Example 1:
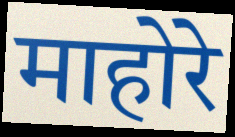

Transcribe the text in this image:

माहोरे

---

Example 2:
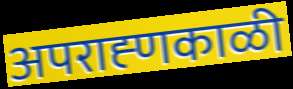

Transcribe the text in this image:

अपराह्णकाळी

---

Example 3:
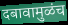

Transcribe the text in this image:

दबावामुळंच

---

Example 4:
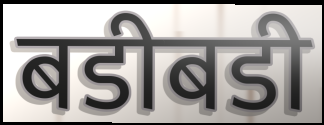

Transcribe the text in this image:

बडीबडी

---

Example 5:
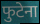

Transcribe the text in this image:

फुटेना